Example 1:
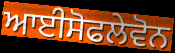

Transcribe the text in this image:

ਆਈਸੋਫਲੇਵੋਨ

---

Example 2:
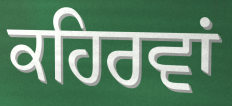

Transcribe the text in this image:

ਕਹਿਰਵਾਂ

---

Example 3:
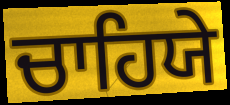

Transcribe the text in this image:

ਚਾਹਿਯੇ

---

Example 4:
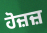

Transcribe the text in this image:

ਹੋਜ਼ਜ਼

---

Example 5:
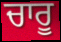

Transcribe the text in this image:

ਚਾਰੂ